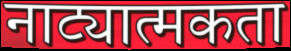
नाट्यात्मकता